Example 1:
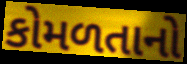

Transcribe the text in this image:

કોમળતાનો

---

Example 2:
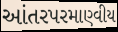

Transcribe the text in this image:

આંતરપરમાણ્વીય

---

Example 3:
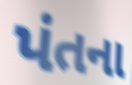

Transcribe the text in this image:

પંતના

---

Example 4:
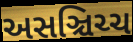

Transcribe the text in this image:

અસઞ્ચિચ્ચ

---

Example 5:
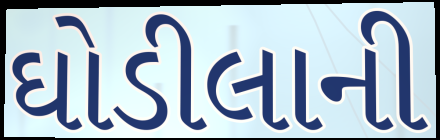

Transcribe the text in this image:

ઘોડીલાની